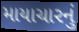
માયાચારનું